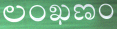
లంఖణం